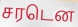
சரடென